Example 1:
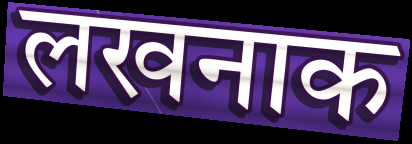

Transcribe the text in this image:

लखनाक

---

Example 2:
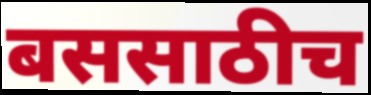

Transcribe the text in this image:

बससाठीच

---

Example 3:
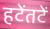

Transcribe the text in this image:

हटेंतटें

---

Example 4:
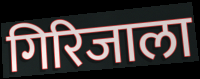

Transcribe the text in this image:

गिरिजाला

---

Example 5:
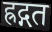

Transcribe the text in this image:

ह्रद्गत